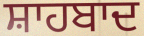
ਸ਼ਾਹਬਾਦ